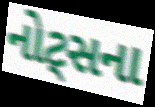
નોટ્સના